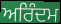
ਅਰਿੰਦਮ